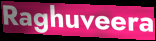
Raghuveera